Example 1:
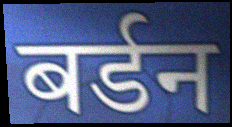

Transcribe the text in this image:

बर्डन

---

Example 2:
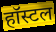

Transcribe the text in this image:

हॉस्टल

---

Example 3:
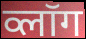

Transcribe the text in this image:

व्लॉग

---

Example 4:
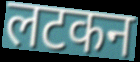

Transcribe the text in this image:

लटकन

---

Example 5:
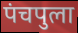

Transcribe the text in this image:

पंचपुला